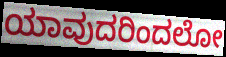
ಯಾವುದರಿಂದಲೋ